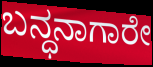
ಬನ್ಧನಾಗಾರೇ